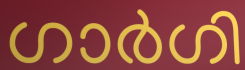
ഗാർഗി